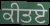
ਕੀਤਏ